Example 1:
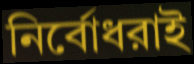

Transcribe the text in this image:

নির্বোধরাই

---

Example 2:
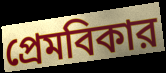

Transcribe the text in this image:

প্রেমবিকার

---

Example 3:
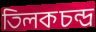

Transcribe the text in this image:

তিলকচন্দ্র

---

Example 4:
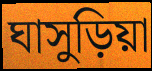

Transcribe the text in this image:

ঘাসুড়িয়া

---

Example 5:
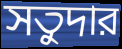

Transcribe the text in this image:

সতুদার